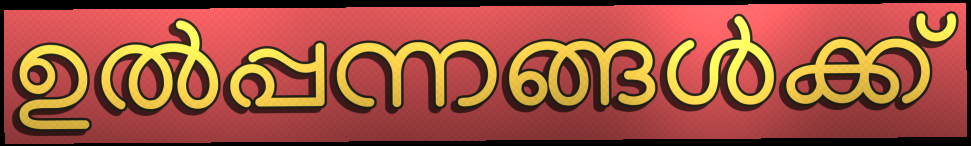
ഉൽപ്പന്നങ്ങൾക്ക്